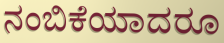
ನಂಬಿಕೆಯಾದರೂ